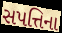
સપત્તિના